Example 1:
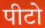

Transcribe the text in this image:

पीटो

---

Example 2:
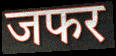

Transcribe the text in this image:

जफर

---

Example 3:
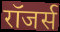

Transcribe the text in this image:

रॉजर्स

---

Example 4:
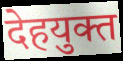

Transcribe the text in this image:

देहयुक्त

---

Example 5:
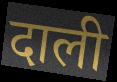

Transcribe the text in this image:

दाली